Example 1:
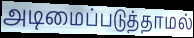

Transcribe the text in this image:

அடிமைப்படுத்தாமல்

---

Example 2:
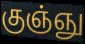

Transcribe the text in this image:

குஞ்ஞு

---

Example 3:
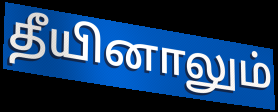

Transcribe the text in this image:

தீயினாலும்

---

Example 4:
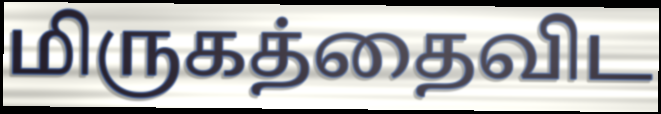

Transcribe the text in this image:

மிருகத்தைவிட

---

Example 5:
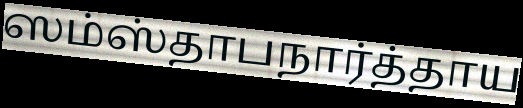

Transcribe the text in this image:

ஸம்ஸ்தாபநார்த்தாய